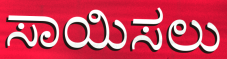
ಸಾಯಿಸಲು